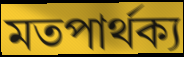
মতপার্থক্য